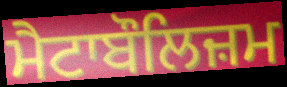
ਮੈਟਾਬੌਲਿਜ਼ਮ